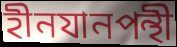
হীনযানপন্থী